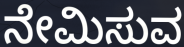
ನೇಮಿಸುವ